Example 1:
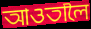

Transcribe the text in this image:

আওতালৈ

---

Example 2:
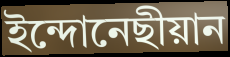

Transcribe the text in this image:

ইন্দোনেছীয়ান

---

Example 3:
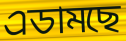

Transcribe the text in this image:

এডামছে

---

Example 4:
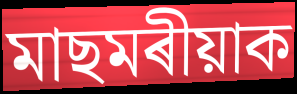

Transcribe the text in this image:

মাছমৰীয়াক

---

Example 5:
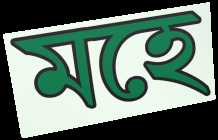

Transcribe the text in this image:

মহে